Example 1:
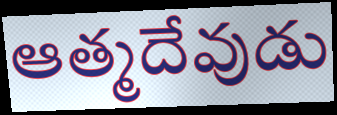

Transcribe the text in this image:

ఆత్మదేవుడు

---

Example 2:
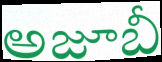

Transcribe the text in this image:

అజూబీ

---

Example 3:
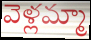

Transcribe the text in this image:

వెళ్లమ్మా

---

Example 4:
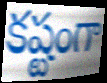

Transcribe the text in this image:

కష్టంగా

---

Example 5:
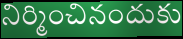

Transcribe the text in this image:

నిర్మించినందుకు